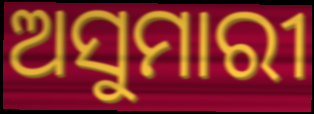
ଅସୁମାରୀ